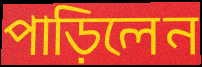
পাড়িলেন